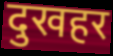
दुखहर